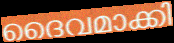
ദൈവമാക്കി